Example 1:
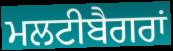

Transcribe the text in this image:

ਮਲਟੀਬੈਗਰਾਂ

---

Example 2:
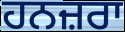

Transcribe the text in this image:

ਹਨਜ਼ਰਾ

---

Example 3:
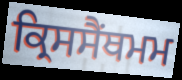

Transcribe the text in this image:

ਕ੍ਰਿਸਸੈਂਥਮਮ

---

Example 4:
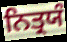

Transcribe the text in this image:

ਨਿਤ੍ਰਯੰ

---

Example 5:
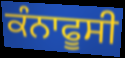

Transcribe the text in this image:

ਕੰਨਾਫੂਸੀ